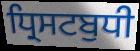
ਧ੍ਰਿਸਟਬੁਧੀ